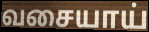
வசையாய்